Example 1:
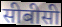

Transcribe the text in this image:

सीबीसी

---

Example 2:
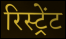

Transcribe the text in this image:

रिस्ट्रेंट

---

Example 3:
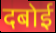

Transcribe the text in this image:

दबोई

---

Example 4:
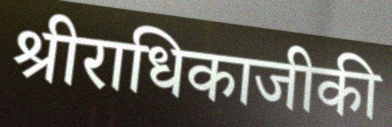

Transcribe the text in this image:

श्रीराधिकाजीकी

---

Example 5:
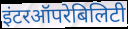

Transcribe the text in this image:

इंटरऑपरेबिलिटी